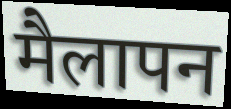
मैलापन